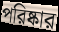
পরিষ্কার